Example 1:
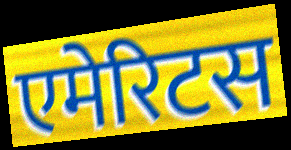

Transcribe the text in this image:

एमेरिटस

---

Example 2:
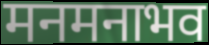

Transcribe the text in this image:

मनमनाभव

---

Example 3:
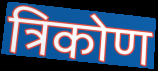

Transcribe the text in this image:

त्रिकोण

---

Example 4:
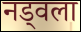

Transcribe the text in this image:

नड्वला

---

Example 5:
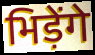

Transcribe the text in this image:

भिड़ेंगे